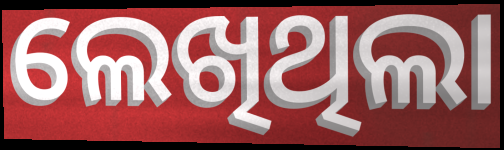
ଲେଖିଥିଲା